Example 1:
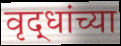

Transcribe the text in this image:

वृद्धांच्या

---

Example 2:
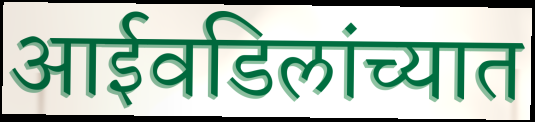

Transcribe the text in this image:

आईवडिलांच्यात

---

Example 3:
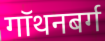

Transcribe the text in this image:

गॉथनबर्ग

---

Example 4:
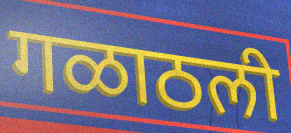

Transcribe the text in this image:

गळाठली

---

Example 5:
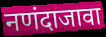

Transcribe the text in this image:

नणंदाजावा